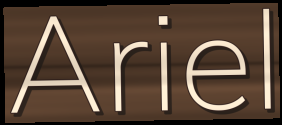
Ariel